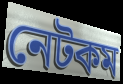
নেটকম